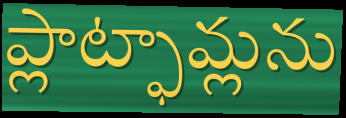
ప్లాట్ఫామ్లను